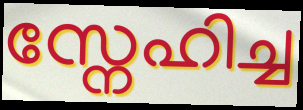
സ്നേഹിച്ച